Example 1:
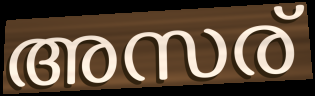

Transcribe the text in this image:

അസര്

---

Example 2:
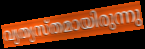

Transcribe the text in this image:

വ്യത്യസ്തമായിരുന്നു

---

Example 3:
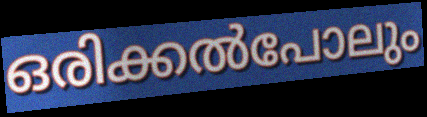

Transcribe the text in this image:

ഒരിക്കൽപോലും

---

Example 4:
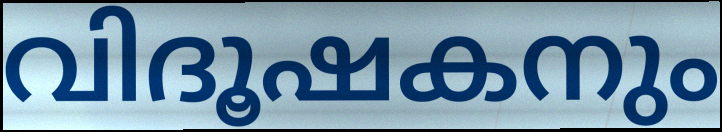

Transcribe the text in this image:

വിദൂഷകനും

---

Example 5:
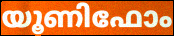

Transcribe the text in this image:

യൂണിഫോം